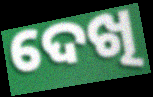
ଦେଖି